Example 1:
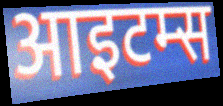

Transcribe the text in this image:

आइटम्स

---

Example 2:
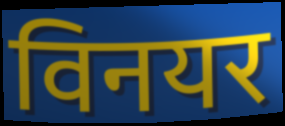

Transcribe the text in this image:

विनयर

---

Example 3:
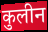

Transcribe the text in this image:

कुलीन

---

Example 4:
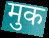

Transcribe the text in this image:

मुक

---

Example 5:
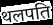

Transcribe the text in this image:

थलपति